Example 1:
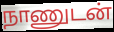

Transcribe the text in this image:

நாணுடன்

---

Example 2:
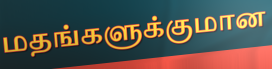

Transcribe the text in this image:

மதங்களுக்குமான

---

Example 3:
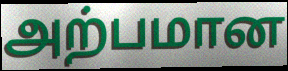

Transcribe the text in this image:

அற்பமான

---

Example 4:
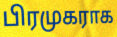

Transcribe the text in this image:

பிரமுகராக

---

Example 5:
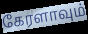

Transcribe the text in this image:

கேரளாவும்